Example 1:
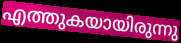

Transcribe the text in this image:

എത്തുകയായിരുന്നു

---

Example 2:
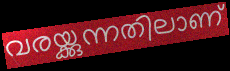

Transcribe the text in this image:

വരയ്ക്കുന്നതിലാണ്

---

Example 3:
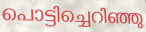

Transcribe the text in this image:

പൊട്ടിച്ചെറിഞ്ഞു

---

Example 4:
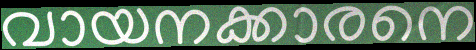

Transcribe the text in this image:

വായനക്കാരനെ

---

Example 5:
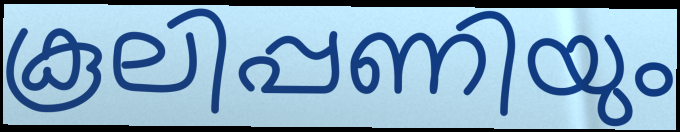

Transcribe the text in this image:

കൂലിപ്പണിയും